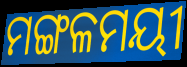
ମଙ୍ଗଳମୟୀ